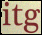
itg